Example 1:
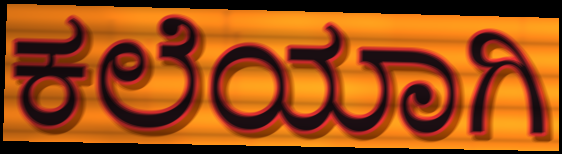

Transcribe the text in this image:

ಕಲೆಯಾಗಿ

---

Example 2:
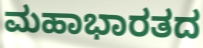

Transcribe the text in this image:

ಮಹಾಭಾರತದ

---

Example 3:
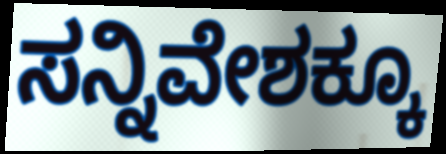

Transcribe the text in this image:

ಸನ್ನಿವೇಶಕ್ಕೂ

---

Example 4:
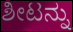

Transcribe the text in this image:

ಶೀಟನ್ನು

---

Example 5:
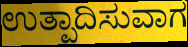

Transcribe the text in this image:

ಉತ್ಪಾದಿಸುವಾಗ